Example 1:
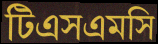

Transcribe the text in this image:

টিএসএমসি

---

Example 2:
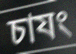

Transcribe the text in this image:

চাযং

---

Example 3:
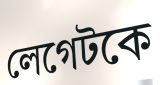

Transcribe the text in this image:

লেগেটকে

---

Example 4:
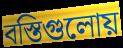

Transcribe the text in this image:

বস্তিগুলোয়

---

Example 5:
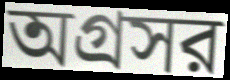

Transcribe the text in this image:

অগ্রসর